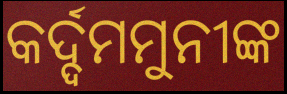
କର୍ଦ୍ଦମମୁନୀଙ୍କ